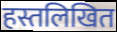
हस्तलिखित